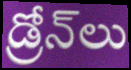
డ్రోన్‌లు